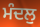
ਮੰਦਲੁ